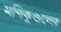
মণিকুণ্ডলের